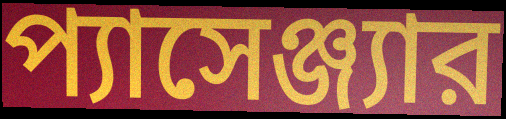
প্যাসেঞ্জ্যার